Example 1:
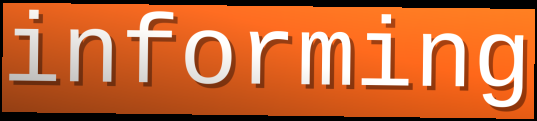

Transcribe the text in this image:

informing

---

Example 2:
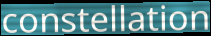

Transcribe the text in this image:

constellation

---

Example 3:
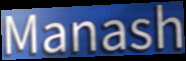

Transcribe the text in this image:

Manash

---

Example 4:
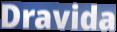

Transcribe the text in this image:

Dravida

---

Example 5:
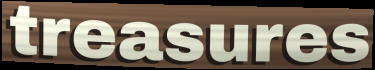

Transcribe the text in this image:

treasures